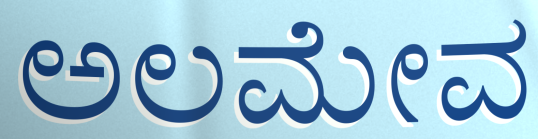
ಅಲಮೇವ